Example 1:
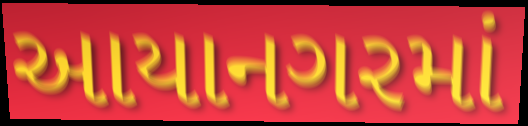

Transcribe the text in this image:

આયાનગરમાં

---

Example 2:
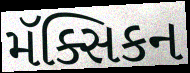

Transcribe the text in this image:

મૅક્સિકન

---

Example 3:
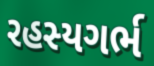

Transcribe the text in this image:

રહસ્યગર્ભ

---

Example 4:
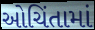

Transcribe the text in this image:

ઓચિંતામાં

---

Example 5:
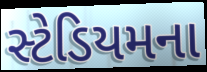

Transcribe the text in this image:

સ્ટેડિયમના